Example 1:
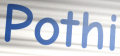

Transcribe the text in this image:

Pothi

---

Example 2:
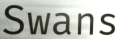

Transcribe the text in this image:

Swans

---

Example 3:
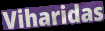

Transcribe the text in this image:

Viharidas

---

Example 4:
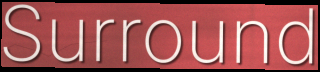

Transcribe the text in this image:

Surround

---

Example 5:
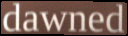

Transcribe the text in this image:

dawned